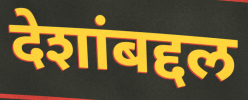
देशांबद्दल